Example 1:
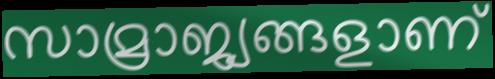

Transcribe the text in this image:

സാമ്രാജ്യങ്ങളാണ്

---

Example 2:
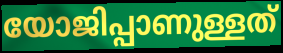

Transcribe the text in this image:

യോജിപ്പാണുള്ളത്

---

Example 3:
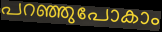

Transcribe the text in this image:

പറഞ്ഞുപോകാം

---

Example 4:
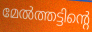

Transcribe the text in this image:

മേൽത്തട്ടിന്റെ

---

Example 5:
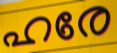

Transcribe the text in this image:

ഹരേ